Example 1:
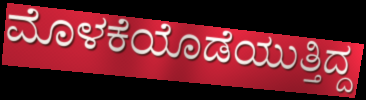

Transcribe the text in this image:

ಮೊಳಕೆಯೊಡೆಯುತ್ತಿದ್ದ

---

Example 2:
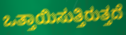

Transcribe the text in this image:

ಒತ್ತಾಯಿಸುತ್ತಿರುತ್ತದೆ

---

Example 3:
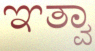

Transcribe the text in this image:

ಞತ್ವಾ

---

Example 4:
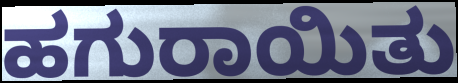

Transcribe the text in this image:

ಹಗುರಾಯಿತು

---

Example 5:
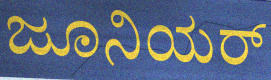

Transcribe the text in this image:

ಜೂನಿಯರ್